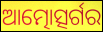
ଆତ୍ମୋତ୍ସର୍ଗର